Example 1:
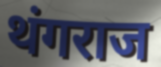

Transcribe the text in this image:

थंगराज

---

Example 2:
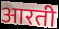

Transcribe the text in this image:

आरती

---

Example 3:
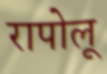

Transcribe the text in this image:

रापोलू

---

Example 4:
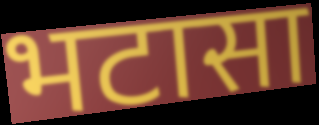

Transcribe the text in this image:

भटासा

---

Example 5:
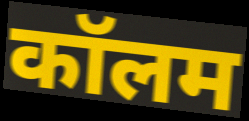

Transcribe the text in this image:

कॉलम